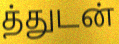
த்துடன்